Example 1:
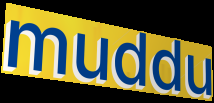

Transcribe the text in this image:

muddu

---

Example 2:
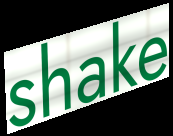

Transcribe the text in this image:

shake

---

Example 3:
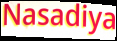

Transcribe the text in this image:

Nasadiya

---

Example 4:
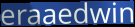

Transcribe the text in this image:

eraaedwin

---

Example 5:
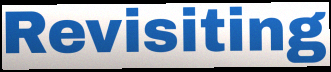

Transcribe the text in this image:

Revisiting